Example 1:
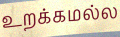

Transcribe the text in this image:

உறக்கமல்ல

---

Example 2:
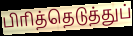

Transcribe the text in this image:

பிரித்தெடுத்துப்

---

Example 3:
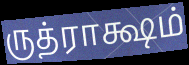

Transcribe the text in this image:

ருத்ராக்ஷம்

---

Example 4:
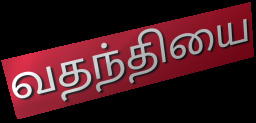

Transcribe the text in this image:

வதந்தியை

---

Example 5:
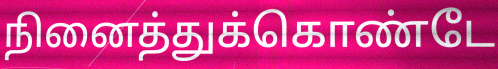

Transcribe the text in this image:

நினைத்துக்கொண்டே